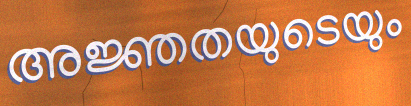
അജ്ഞതയുടെയും